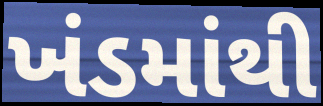
ખંડમાંથી